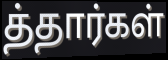
த்தார்கள்